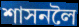
শাসনলৈ